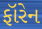
ફૉરેન